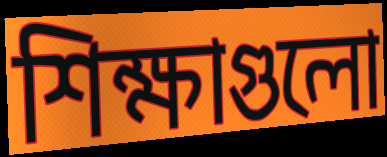
শিক্ষাগুলো